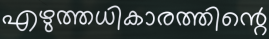
എഴുത്തധികാരത്തിന്റെ